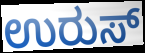
ಉರುಸ್